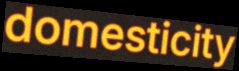
domesticity